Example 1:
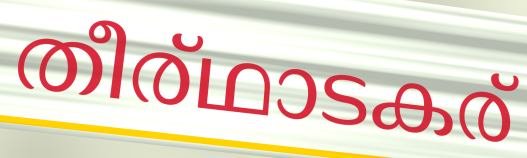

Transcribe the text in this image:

തീര്ഥാടകര്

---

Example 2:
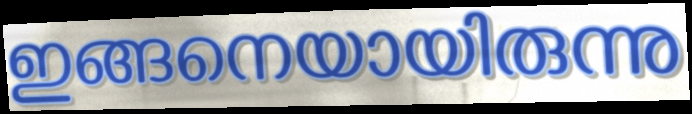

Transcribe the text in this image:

ഇങ്ങനെയായിരുന്നു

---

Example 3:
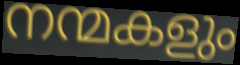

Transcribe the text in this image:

നന്മകളും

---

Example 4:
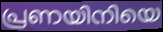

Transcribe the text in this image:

പ്രണയിനിയെ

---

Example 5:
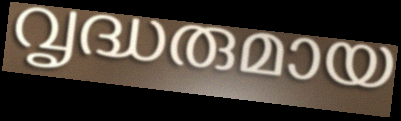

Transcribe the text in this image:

വൃദ്ധരുമായ